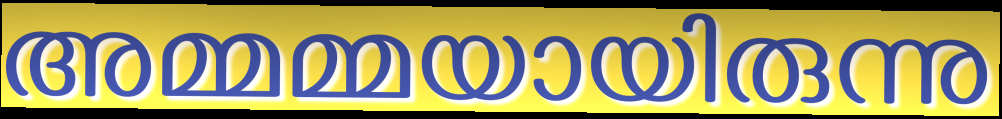
അമ്മമ്മയായിരുന്നു